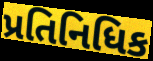
પ્રતિનિધિક